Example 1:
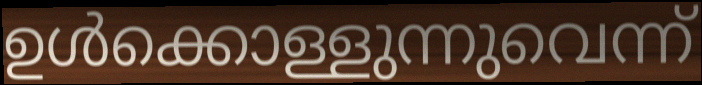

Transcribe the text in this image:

ഉൾക്കൊള്ളുന്നുവെന്ന്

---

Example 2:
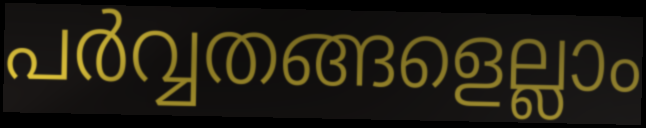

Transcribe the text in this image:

പർവ്വതങ്ങളെല്ലാം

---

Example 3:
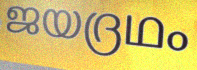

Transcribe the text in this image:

ജയദ്രഥം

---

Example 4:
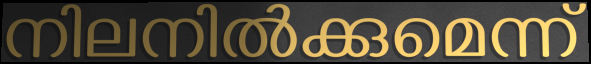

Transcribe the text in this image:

നിലനിൽക്കുമെന്ന്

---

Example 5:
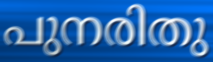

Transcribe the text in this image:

പുനരിതു